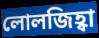
লোলজিহ্বা